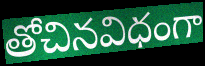
తోచినవిధంగా